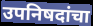
उपनिषदांचा